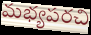
మభ్యపరచి